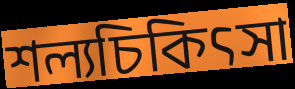
শল্যচিকিৎসা